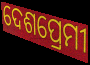
ଦେଶପ୍ରେମୀ